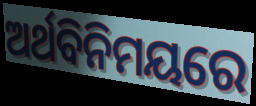
ଅର୍ଥବିନିମୟରେ